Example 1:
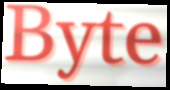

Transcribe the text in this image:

Byte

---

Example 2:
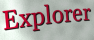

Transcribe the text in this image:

Explorer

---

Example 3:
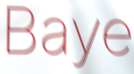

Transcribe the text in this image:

Baye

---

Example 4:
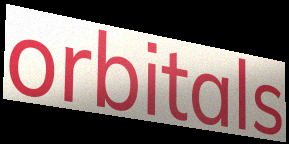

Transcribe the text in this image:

orbitals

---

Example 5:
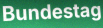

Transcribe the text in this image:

Bundestag